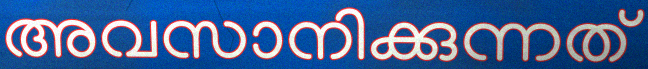
അവസാനിക്കുന്നത്